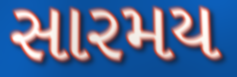
સારમય